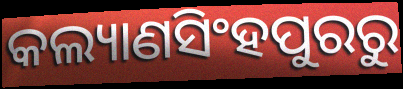
କଲ୍ୟାଣସିଂହପୁରରୁ